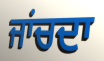
ਜਾਂਚਦਾ